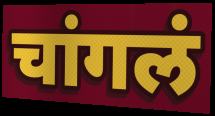
चांगलं